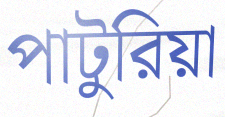
পাটুরিয়া